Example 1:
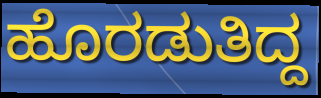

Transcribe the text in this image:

ಹೊರಡುತಿದ್ದ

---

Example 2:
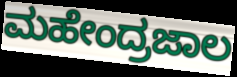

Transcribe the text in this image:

ಮಹೇಂದ್ರಜಾಲ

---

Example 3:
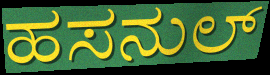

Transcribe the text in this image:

ಹಸನುಲ್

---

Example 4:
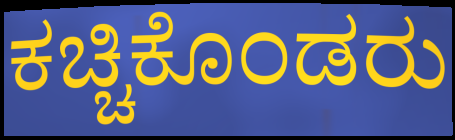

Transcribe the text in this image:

ಕಚ್ಚಿಕೊಂಡರು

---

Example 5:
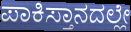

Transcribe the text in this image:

ಪಾಕಿಸ್ತಾನದಲ್ಲೇ